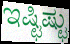
ಇಷ್ಟಿಷ್ಟು